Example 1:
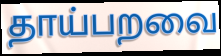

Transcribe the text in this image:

தாய்பறவை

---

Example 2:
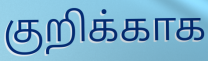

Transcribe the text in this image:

குறிக்காக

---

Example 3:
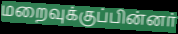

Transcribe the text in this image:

மறைவுக்குப்பின்னர்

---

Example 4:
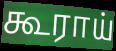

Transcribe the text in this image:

கூராய்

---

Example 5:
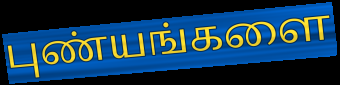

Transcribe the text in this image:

புண்யங்களை